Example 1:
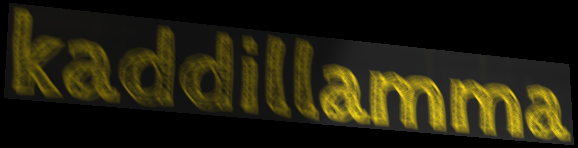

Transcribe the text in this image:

kaddillamma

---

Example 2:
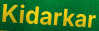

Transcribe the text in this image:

Kidarkar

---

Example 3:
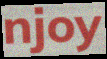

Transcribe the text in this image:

njoy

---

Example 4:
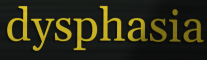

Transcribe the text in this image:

dysphasia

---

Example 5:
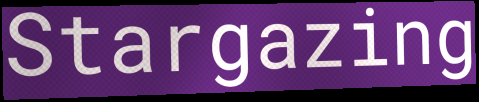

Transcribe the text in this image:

Stargazing